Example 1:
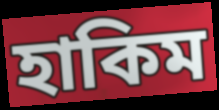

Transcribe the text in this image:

হাকিম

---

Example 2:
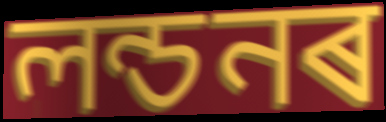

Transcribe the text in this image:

লন্ডনৰ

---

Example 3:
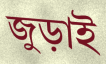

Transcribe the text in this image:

জুড়াই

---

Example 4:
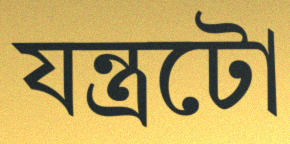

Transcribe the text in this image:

যন্ত্ৰটো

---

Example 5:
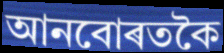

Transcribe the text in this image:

আনবোৰতকৈ